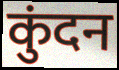
कुंदन